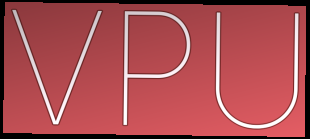
VPU